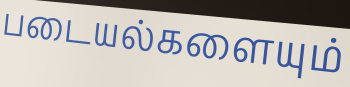
படையல்களையும்